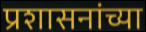
प्रशासनांच्या